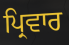
ਪ੍ਰਿਵਾਰ